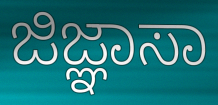
ಜಿಜ್ಞಾಸಾ